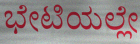
ಭೇಟಿಯಲ್ಲೇ